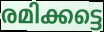
രമിക്കട്ടെ